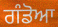
ਗੰਡੋਆ